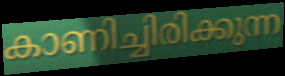
കാണിച്ചിരിക്കുന്ന